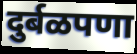
दुर्बळपणा